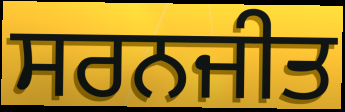
ਸਰਨਜੀਤ